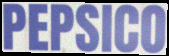
PEPSICO